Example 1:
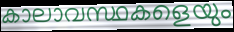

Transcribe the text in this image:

കാലാവസ്ഥകളെയും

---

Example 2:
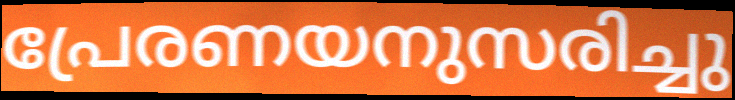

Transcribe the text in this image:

പ്രേരണയനുസരിച്ചു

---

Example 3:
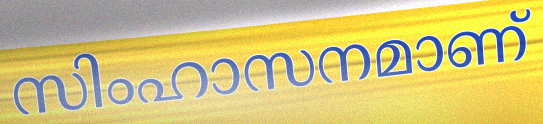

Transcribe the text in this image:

സിംഹാസനമാണ്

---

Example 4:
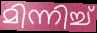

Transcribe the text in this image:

മിന്നിച്ച്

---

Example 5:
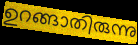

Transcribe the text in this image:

ഉറങ്ങാതിരുന്നു